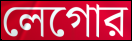
লেগোর